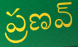
ప్రణవ్